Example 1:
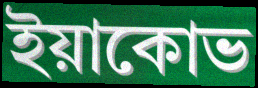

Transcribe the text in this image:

ইয়াকোভ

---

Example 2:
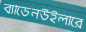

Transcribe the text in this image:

ব্যাডেনউইলারে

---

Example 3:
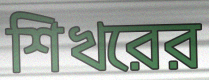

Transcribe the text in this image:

শিখরের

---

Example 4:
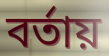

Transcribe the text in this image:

বর্তায়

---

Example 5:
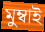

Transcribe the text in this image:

মুম্বাই